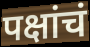
पक्षांचं